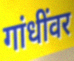
गांधींवर